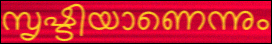
സൃഷ്ടിയാണെന്നും